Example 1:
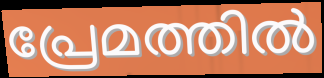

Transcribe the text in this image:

പ്രേമത്തിൽ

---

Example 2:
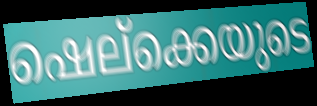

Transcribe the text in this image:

ഷെല്ക്കെയുടെ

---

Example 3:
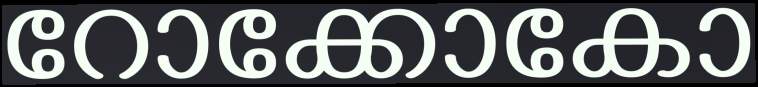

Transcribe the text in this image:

റോക്കോകോ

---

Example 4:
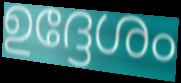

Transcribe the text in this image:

ഉദ്ദേശം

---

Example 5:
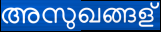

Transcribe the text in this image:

അസുഖങ്ങള്